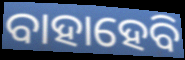
ବାହାହେବି